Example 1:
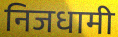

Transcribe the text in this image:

निजधामी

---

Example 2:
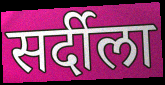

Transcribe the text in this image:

सर्दीला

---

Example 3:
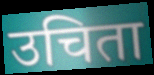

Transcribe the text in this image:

उचिता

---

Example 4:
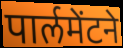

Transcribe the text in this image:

पार्लमेंटने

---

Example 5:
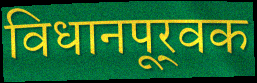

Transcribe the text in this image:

विधानपूर्वक